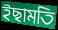
ইছামতি